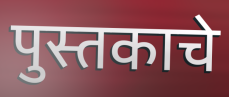
पुस्तकाचे